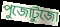
পুজোটুজো